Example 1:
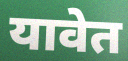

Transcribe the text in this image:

यावेत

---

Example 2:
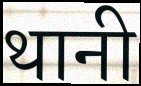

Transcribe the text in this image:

थानी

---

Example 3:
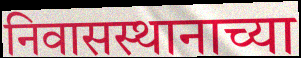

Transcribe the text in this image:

निवासस्थानाच्या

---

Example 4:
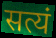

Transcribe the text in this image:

सत्यं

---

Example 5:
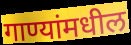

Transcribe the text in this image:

गाण्यांमधील